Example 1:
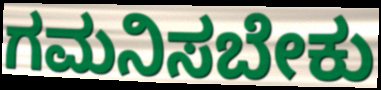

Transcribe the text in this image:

ಗಮನಿಸಬೇಕು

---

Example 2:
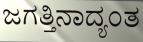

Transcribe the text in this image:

ಜಗತ್ತಿನಾದ್ಯಂತ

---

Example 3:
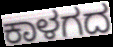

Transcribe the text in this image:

ಕಾಳಗದ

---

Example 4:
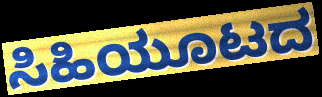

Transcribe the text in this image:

ಸಿಹಿಯೂಟದ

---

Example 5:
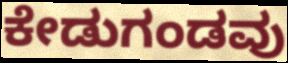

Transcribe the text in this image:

ಕೇಡುಗಂಡವು